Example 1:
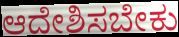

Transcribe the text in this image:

ಆದೇಶಿಸಬೇಕು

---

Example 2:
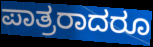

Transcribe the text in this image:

ಪಾತ್ರರಾದರೂ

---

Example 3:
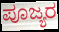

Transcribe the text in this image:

ಪೂಜ್ಯರ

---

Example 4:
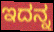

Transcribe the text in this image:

ಇದನ್ನ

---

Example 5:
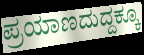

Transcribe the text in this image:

ಪ್ರಯಾಣದುದ್ದಕ್ಕೂ